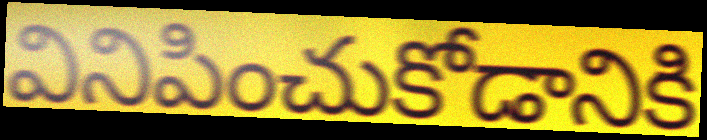
వినిపించుకోడానికి